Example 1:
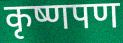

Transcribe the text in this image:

कृष्णपण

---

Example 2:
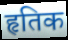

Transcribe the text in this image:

हृतिक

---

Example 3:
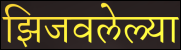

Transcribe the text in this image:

झिजवलेल्या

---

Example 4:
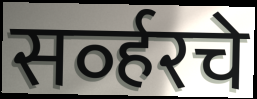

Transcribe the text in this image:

सर्व्हरचे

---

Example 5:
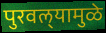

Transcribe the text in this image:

पुरवल्यामुळे